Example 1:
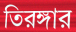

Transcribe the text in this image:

তিরঙ্গার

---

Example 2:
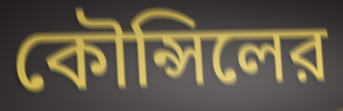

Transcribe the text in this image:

কৌন্সিলের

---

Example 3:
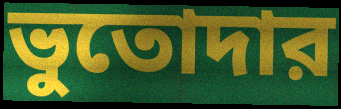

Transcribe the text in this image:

ভুতোদার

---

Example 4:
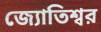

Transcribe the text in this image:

জ্যোতিশ্বর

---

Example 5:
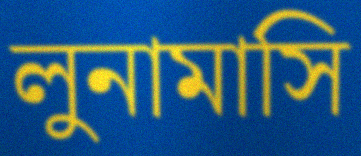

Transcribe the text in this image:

লুনামাসি